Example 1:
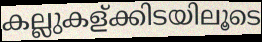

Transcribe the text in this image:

കല്ലുകള്ക്കിടയിലൂടെ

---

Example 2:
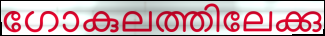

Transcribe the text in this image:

ഗോകുലത്തിലേക്കു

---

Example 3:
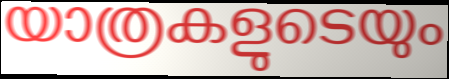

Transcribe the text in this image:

യാത്രകളുടെയും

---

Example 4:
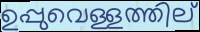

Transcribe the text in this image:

ഉപ്പുവെള്ളത്തില്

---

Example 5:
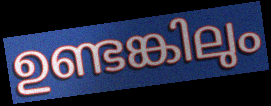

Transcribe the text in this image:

ഉണ്ടങ്കിലും